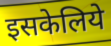
इसकेलिये